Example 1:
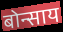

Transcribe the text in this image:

बोन्साय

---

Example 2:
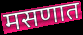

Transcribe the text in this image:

मसणात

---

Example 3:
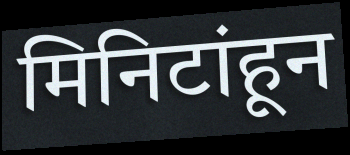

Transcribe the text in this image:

मिनिटांहून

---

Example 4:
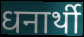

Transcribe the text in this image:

धनार्थी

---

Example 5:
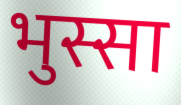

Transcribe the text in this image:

भुस्सा